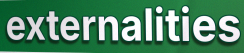
externalities